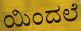
ಯಿಂದಲೆ